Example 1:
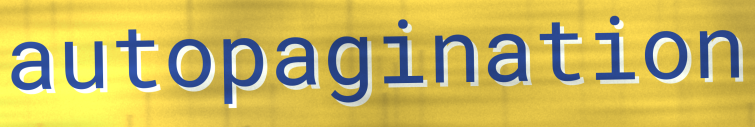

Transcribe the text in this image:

autopagination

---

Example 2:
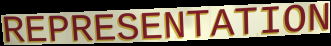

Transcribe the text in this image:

REPRESENTATION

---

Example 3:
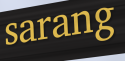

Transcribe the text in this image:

sarang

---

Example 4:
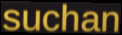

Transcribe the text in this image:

suchan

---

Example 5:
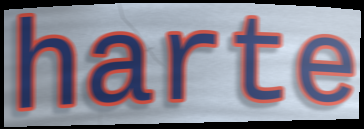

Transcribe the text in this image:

harte